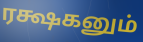
ரக்ஷகனும்